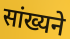
सांख्यने